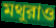
মথুরাও